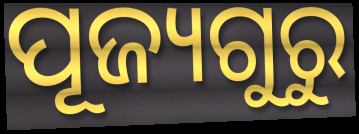
ପୂଜ୍ୟଗୁରୁ